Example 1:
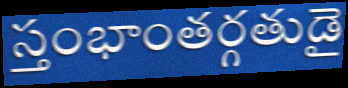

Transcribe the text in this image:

స్తంభాంతర్గతుడై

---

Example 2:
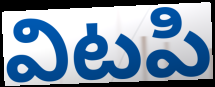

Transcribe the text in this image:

విటపి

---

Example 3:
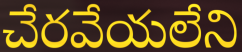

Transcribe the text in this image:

చేరవేయలేని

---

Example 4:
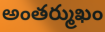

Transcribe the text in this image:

అంతర్ముఖం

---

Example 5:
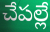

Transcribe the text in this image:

చేపల్లే